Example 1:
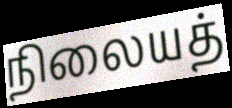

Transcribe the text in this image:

நிலையத்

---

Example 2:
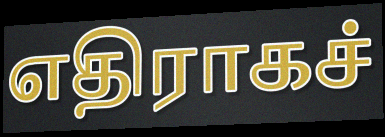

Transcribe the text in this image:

எதிராகச்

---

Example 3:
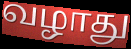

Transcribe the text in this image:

வழாது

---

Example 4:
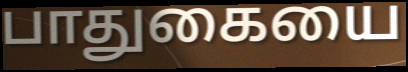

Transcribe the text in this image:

பாதுகையை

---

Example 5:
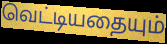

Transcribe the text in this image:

வெட்டியதையும்